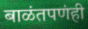
बाळंतपणंही